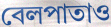
বেলপাতাও